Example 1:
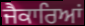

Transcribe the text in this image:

ਜੈਕਾਰਿਆਂ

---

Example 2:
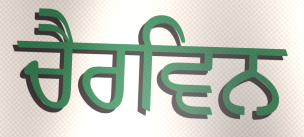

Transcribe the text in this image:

ਚੈਰਵਿਨ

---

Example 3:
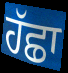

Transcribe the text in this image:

ਹੱਛਾ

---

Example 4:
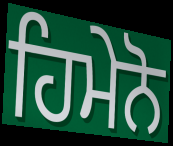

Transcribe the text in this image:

ਹਿਮੇਨੋ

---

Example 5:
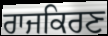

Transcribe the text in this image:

ਰਾਜਕਿਰਣ